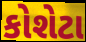
કોશેટા